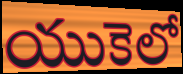
యుకెలో